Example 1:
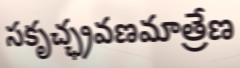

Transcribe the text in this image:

సకృచ్ఛ్రవణమాత్రేణ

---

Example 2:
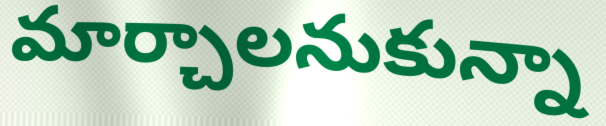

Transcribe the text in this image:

మార్చాలనుకున్నా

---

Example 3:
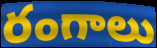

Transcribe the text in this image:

రంగాలు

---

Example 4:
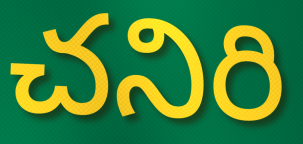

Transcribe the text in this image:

చనిరి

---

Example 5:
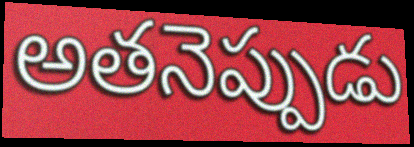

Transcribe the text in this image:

అతనెప్పుడు